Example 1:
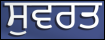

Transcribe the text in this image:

ਸੁਵਰਤ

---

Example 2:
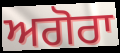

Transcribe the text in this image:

ਅਗੋਰਾ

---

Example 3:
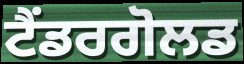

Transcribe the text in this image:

ਟੈਂਡਰਗੋਲਡ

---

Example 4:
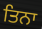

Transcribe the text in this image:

ਤਿਨਾ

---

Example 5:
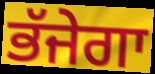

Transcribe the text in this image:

ਭੱਜੇਗਾ